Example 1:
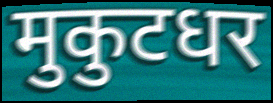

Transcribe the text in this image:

मुकुटधर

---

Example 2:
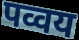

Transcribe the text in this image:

पव्वय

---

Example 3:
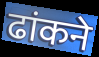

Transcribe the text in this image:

ढांकने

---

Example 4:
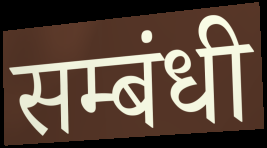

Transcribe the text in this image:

सम्बंधी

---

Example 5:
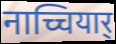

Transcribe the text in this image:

नाच्चियार्